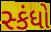
સ્કંધો